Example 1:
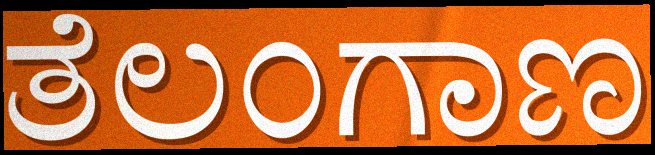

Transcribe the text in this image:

ತೆಲಂಗಾಣ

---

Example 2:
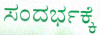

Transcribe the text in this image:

ಸಂದರ್ಭಕ್ಕೆ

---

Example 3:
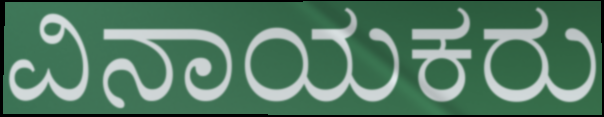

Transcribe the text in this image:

ವಿನಾಯಕರು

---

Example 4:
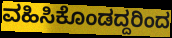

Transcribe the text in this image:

ವಹಿಸಿಕೊಂಡದ್ದರಿಂದ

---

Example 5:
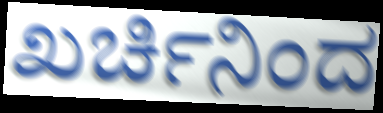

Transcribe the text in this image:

ಖರ್ಚಿನಿಂದ